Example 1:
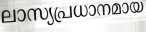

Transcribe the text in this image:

ലാസ്യപ്രധാനമായ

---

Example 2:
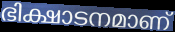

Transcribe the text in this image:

ഭിക്ഷാടനമാണ്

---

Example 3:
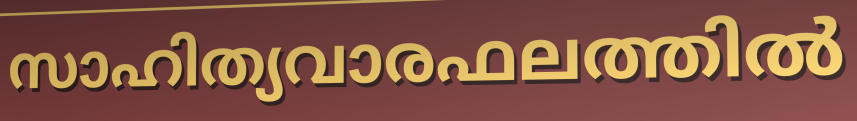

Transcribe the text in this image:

സാഹിത്യവാരഫലത്തിൽ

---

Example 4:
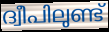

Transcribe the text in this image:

ദ്വീപിലുണ്ട്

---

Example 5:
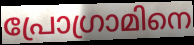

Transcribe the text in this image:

പ്രോഗ്രാമിനെ